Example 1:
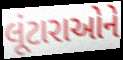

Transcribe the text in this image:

લૂંટારાઓને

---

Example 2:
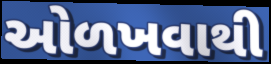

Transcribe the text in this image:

ઓળખવાથી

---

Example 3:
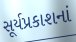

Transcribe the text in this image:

સૂર્યપ્રકાશનાં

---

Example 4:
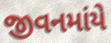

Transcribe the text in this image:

જીવનમાંયે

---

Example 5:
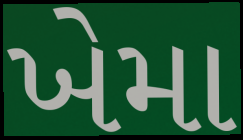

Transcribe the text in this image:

ખેમા